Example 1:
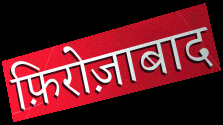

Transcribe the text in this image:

फ़िरोज़ाबाद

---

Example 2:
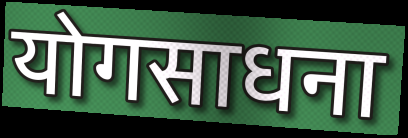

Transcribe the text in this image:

योगसाधना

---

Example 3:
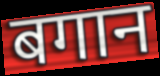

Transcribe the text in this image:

बगान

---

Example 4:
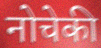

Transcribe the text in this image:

नोचेकी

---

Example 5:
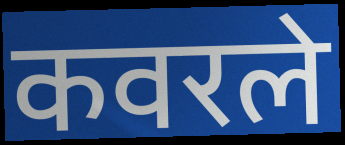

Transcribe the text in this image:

कवरले